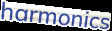
harmonics